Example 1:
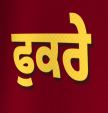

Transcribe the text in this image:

ਫੁਕਰੇ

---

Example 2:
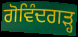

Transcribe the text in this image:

ਗੋਵਿੰਦਗੜ੍ਹ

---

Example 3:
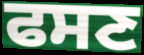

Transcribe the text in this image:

ਫਸਣ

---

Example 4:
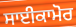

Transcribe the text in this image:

ਸਾਈਕਾਮੋਰ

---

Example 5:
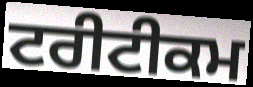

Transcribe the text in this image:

ਟਰੀਟੀਕਮ